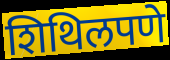
शिथिलपणे